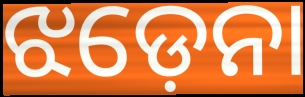
ଝଡ଼େନା